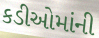
કડીઓમાંની